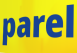
parel